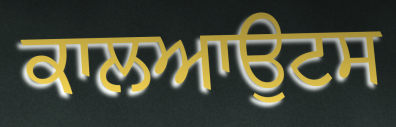
ਕਾਲਆਉਟਸ